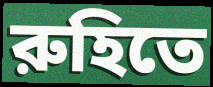
রুহিতে